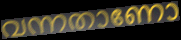
വന്നതാണോ